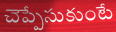
చెప్పేసుకుంటే